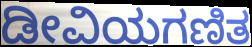
ಡೀವಿಯಗಣಿತ